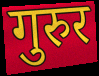
गुरुर